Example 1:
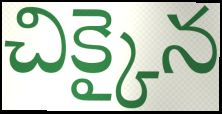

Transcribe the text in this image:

చిక్కైన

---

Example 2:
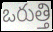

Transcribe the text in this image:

ఒరుత్తి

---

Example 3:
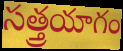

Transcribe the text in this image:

సత్త్రయాగం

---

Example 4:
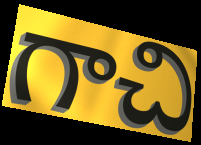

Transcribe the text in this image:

గాచి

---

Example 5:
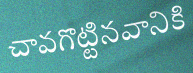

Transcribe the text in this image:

చావగొట్టినవానికి